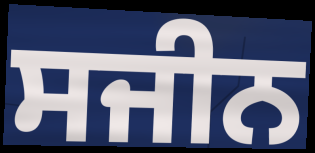
ਸਜੀਨ